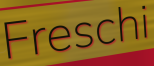
Freschi